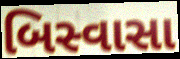
બિસ્વાસા